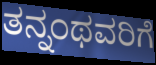
ತನ್ನಂಥವರಿಗೆ